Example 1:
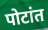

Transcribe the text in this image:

पोटांत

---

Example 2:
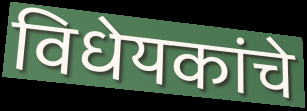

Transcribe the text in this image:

विधेयकांचे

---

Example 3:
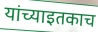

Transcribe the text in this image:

यांच्याइतकाच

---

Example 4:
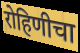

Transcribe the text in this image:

रोहिणीचा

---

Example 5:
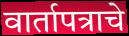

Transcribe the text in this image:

वार्तापत्राचे